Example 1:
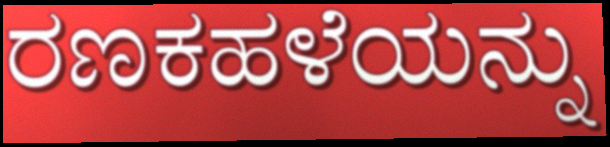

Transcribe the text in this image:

ರಣಕಹಳೆಯನ್ನು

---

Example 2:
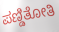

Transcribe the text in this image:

ಪಣ್ಡಿತೋತಿ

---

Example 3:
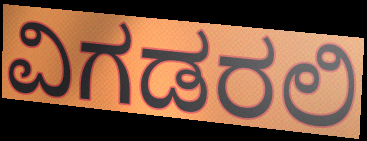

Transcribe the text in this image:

ವಿಗಡರಲಿ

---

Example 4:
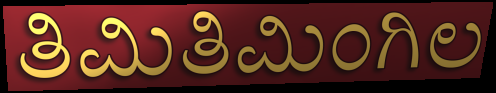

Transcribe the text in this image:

ತಿಮಿತಿಮಿಂಗಿಲ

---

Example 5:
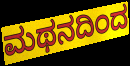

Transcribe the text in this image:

ಮಥನದಿಂದ